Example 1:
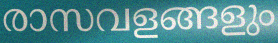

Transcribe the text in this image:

രാസവളങ്ങളും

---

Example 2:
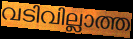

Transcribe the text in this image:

വടിവില്ലാത്ത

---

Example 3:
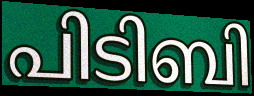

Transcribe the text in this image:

പിടിബി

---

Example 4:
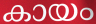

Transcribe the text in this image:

കായം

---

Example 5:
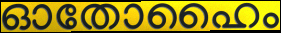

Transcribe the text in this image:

ഓതോഹൈം